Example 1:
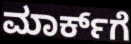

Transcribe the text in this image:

ಮಾರ್ಕ್‌ಗೆ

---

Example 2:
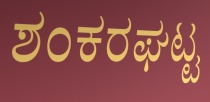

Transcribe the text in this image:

ಶಂಕರಘಟ್ಟ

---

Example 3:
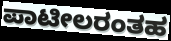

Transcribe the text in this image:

ಪಾಟೀಲರಂತಹ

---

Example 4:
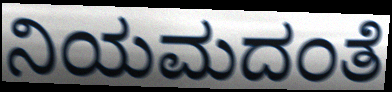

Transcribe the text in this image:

ನಿಯಮದಂತೆ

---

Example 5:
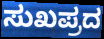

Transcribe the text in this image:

ಸುಖಪ್ರದ